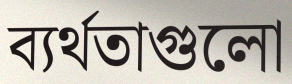
ব্যর্থতাগুলো